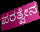
ಪರತ್ವೇನ